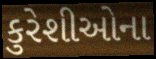
કુરેશીઓના